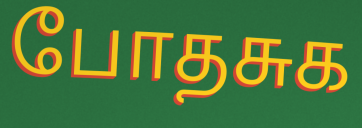
போதசுக